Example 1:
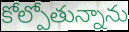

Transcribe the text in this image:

కోల్పోతున్నాను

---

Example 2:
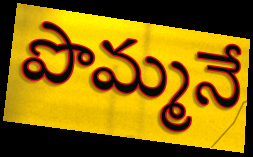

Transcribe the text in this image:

పొమ్మనే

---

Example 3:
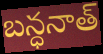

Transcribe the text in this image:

బన్ధనాత్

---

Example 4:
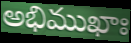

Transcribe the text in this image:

అభిముఖాః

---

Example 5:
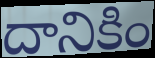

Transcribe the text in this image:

దానికిం